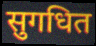
सुगधित